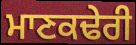
ਮਾਣਕਢੇਰੀ